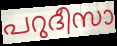
പറുദീസാ